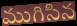
ముగిసిన